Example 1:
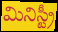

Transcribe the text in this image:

మినిస్ట్రీ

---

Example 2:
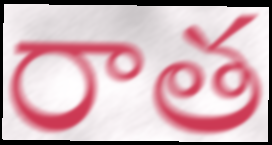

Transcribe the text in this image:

రాత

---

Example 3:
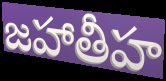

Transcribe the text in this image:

జహాతీహ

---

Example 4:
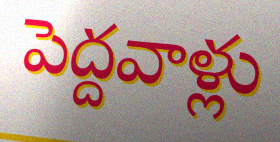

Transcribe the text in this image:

పెద్దవాళ్లు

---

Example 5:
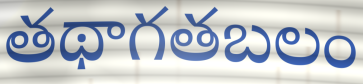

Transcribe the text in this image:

తథాగతబలం